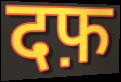
दफ़